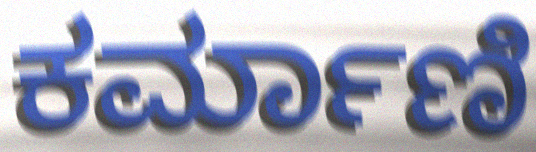
ಕರ್ಮಾಣಿ